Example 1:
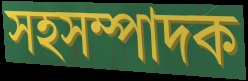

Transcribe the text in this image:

সহসম্পাদক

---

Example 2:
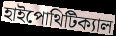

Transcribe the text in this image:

হাইপোথিটিক্যাল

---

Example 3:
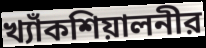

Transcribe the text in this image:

খ্যাঁকশিয়ালনীর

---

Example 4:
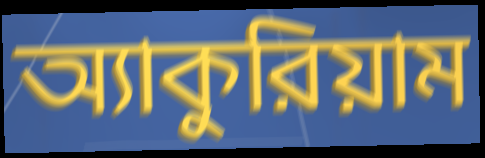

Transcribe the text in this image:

অ্যাকুরিয়াম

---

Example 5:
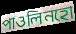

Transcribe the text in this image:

পাওলিনহো